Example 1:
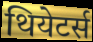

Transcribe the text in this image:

थियेटर्स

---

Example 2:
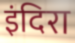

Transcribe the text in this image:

इंदिरा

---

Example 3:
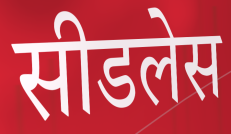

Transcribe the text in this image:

सीडलेस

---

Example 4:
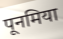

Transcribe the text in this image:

पूनमिया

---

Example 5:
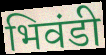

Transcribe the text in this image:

भिवंडी